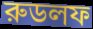
রুডলফ